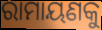
ରାମାୟଣକୁ